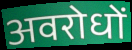
अवरोधों